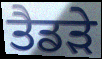
ਤੈਡੜੇ